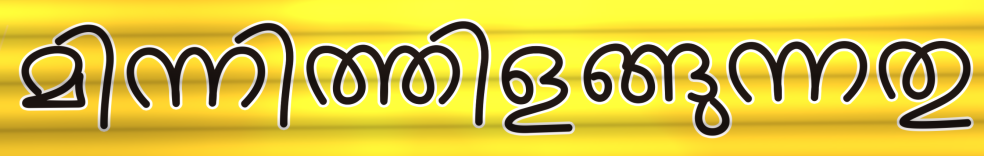
മിന്നിത്തിളങ്ങുന്നതു